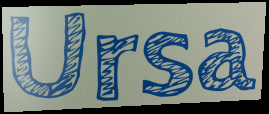
Ursa